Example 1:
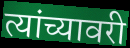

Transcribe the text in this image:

त्यांच्यावरी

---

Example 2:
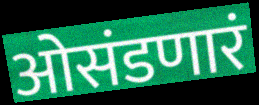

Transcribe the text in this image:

ओसंडणारं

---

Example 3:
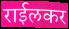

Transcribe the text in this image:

राईलकर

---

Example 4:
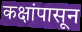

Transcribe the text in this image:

कक्षांपासून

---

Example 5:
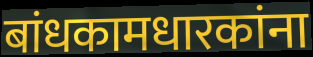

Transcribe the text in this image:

बांधकामधारकांना